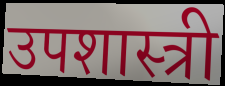
उपशास्त्री